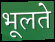
भूलते